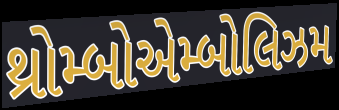
થ્રોમ્બોએમ્બોલિઝમ